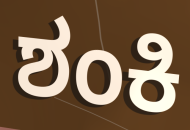
ಶಂಕಿ